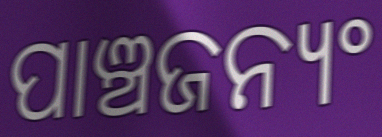
ପାଞ୍ଚଜନ୍ୟଂ